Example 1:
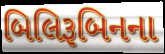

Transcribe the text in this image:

બિલિરૂબિનના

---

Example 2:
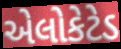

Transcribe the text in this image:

એલોકેટેડ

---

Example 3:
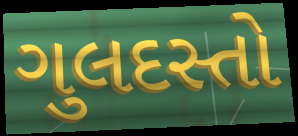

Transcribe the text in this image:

ગુલદસ્તો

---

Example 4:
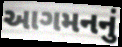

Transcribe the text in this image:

આગમનનું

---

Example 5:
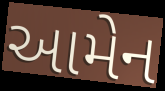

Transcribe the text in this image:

આમેન